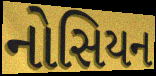
નોસિયન